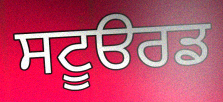
ਸਟੂੳਰਡ